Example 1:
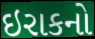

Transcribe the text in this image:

ઇરાકનો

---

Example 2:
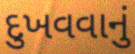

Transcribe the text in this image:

દુખવવાનું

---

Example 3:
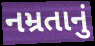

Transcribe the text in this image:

નમ્રતાનું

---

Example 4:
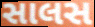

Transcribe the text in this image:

સાલસ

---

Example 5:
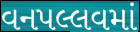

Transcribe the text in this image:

વનપલ્લવમાં